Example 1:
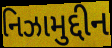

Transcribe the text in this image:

નિઝામુદ્દીન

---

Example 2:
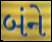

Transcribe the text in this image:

બંને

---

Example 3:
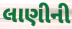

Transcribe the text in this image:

લાણીની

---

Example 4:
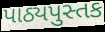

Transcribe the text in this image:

પાઠ્યપુસ્તક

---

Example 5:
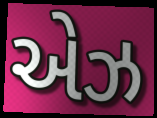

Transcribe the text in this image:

એઝ